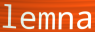
lemna